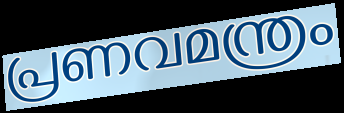
പ്രണവമന്ത്രം